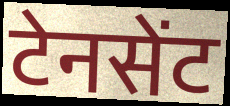
टेनसेंट